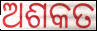
ଅଶକତ